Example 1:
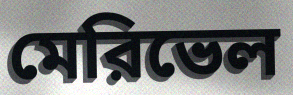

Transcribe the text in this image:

মেরিভেল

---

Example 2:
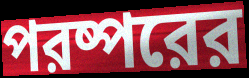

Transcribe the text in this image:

পরষ্পরের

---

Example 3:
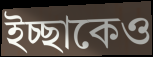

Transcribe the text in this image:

ইচ্ছাকেও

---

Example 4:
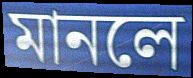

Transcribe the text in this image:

মানলে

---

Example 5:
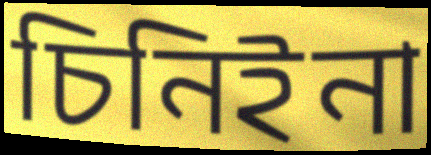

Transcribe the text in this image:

চিনিইনা